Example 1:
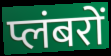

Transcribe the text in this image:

प्लंबरों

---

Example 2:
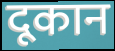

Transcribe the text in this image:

दूकान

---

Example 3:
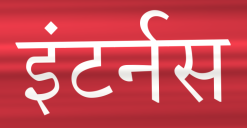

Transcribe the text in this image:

इंटर्नस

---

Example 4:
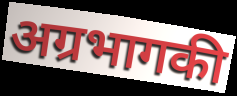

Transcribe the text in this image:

अग्रभागकी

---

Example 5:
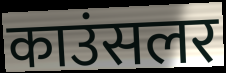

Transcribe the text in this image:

काउंसलर